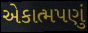
એકાત્મપણું